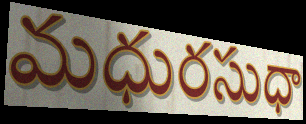
మధురసుధా